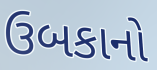
ઉબકાનો